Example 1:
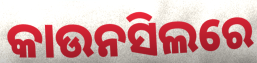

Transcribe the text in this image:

କାଉନସିଲରେ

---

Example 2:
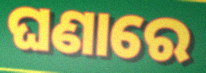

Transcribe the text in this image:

ଘଣାରେ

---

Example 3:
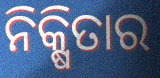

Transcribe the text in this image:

ନିକ୍ଷିତାର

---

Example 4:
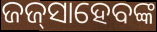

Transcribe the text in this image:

ଜଜ୍‌ସାହେବଙ୍କ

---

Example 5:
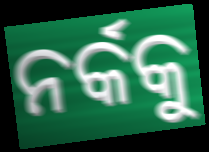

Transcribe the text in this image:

ନର୍କକୁ